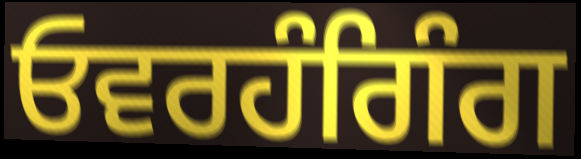
ਓਵਰਹੰਗਿੰਗ